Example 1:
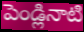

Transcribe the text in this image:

పెండ్లినాటి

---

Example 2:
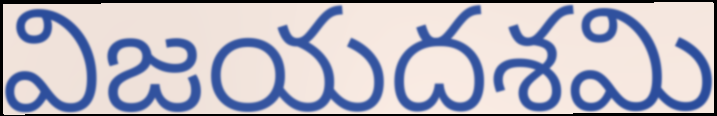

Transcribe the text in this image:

విజయదశమి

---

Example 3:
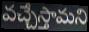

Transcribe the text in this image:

వచ్చేస్తామని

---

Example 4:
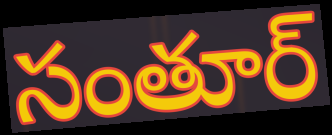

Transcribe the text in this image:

సంతూర్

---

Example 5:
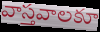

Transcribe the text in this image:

వాస్తవాలకూ